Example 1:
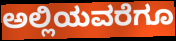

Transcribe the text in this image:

ಅಲ್ಲಿಯವರೆಗೂ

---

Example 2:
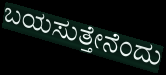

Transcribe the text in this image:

ಬಯಸುತ್ತೇನೆಂದು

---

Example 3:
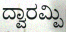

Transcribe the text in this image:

ದ್ವಾರಮ್ಪಿ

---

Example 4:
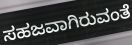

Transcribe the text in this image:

ಸಹಜವಾಗಿರುವಂತೆ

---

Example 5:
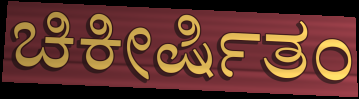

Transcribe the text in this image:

ಚಿಕೀರ್ಷಿತಂ